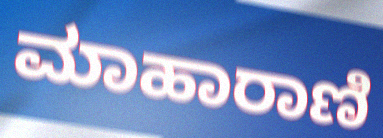
ಮಾಹಾರಾಣಿ